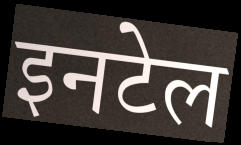
इनटेल